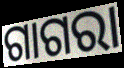
ଗାଗରା